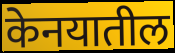
केनयातील